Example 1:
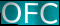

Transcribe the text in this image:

OFC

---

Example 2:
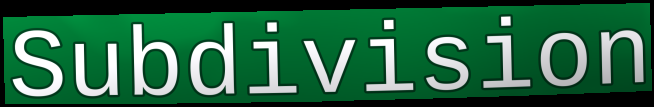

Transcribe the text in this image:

Subdivision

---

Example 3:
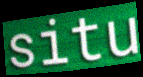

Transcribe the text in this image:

situ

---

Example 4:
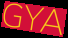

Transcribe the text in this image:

GYA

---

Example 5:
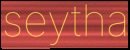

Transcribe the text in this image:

seytha